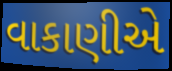
વાકાણીએ